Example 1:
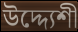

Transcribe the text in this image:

উদ্দ্যেশী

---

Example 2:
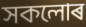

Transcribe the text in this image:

সকলোৰ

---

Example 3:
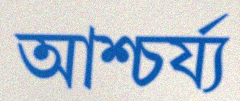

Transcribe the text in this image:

আশ্চৰ্য্য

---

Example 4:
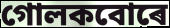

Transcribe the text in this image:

গোলকবোৰে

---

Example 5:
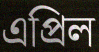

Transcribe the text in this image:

এপ্ৰিল